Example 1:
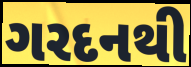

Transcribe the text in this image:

ગરદનથી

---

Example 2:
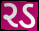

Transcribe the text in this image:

રડ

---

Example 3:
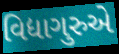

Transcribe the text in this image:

વિદ્યાગુરુએ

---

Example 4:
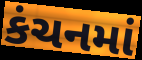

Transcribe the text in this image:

કંચનમાં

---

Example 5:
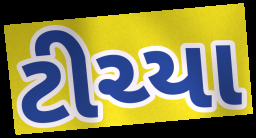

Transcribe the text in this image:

ટીચ્યા